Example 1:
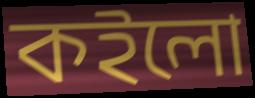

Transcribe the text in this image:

কইলো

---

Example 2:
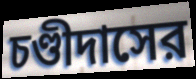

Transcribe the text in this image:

চণ্ডীদাসের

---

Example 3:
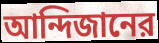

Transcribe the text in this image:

আন্দিজানের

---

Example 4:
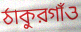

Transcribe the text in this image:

ঠাকুরগাঁও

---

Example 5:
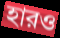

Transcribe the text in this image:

হারও